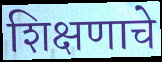
शिक्षणाचे